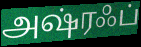
அஷ்ரஃப்